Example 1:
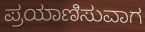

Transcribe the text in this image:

ಪ್ರಯಾಣಿಸುವಾಗ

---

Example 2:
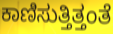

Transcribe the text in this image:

ಕಾಣಿಸುತ್ತಿತ್ತಂತೆ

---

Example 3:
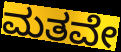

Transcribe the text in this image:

ಮತವೇ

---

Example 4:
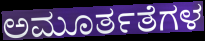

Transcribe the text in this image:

ಅಮೂರ್ತತೆಗಳ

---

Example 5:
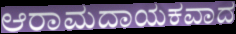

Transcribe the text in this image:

ಆರಾಮದಾಯಕವಾದ